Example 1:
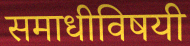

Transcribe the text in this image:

समाधीविषयी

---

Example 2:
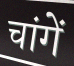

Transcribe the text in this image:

चांगें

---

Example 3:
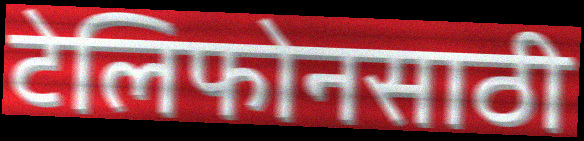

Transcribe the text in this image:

टेलिफोनसाठी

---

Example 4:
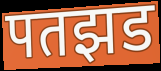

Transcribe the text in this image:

पतझड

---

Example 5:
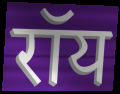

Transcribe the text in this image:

रॉय